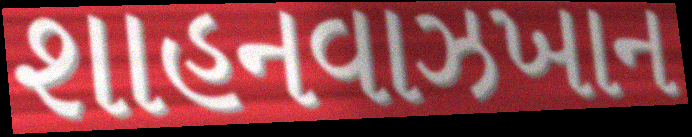
શાહનવાઝખાન